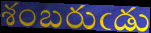
శంబరుఁడు